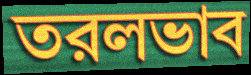
তরলভাব